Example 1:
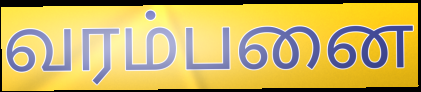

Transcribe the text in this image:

வரம்பனை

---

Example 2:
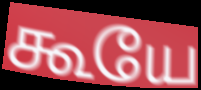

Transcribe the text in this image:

கூயே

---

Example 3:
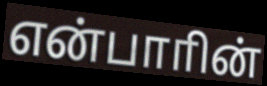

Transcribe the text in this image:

என்பாரின்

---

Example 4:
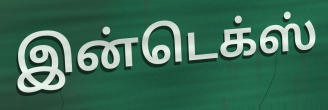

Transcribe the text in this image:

இன்டெக்ஸ்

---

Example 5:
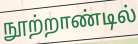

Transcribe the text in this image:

நூற்றாண்டில்